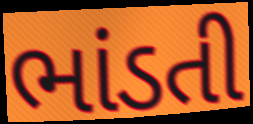
ભાંડતી